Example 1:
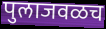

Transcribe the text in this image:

पुलाजवळच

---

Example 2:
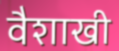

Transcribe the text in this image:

वैशाखी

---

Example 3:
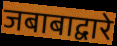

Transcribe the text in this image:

जबाबाद्वारे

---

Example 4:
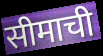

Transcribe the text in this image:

सीमाची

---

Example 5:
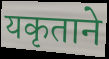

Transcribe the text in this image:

यकृताने